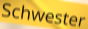
Schwester